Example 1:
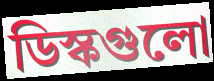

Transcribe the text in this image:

ডিস্কগুলো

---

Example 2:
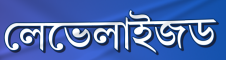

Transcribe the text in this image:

লেভেলাইজড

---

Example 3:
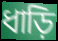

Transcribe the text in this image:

ধাড়ি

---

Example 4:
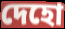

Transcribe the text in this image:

দেহো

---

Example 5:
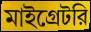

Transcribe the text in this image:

মাইগ্রেটরি